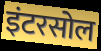
इंटरसोल